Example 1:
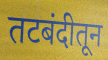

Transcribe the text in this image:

तटबंदीतून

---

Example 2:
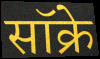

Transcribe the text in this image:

सॉक्रे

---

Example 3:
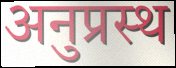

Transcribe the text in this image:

अनुप्रस्थ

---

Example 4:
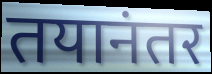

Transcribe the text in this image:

तयानंतर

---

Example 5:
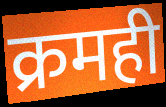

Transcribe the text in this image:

क्रमही